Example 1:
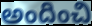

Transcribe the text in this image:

అందించి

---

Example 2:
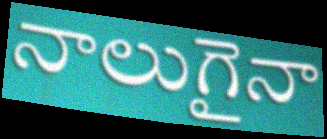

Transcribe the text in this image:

నాలుగైనా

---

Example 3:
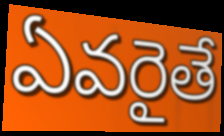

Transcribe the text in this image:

ఏవరైతే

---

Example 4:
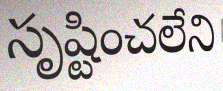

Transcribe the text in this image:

సృష్టించలేని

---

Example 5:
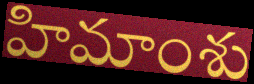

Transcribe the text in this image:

హిమాంశు